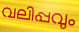
വലിപ്പവും